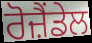
ਰੋਜ਼ੈਂਡੇਲ